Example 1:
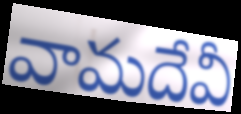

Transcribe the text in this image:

వామదేవీ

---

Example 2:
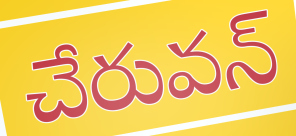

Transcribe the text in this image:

చేరువన్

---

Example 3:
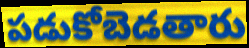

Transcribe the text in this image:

పడుకోబెడతారు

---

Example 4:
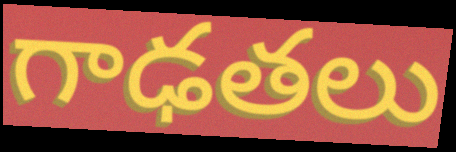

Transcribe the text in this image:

గాఢతలు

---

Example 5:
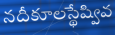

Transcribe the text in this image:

నదీకూలస్థేష్వివ